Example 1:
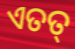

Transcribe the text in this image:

ଏତତ୍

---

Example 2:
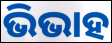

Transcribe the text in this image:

ଭିଭାହ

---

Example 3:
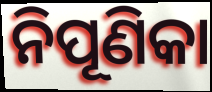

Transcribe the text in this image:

ନିପୂଣିକା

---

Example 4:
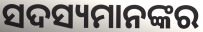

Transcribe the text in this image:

ସଦସ୍ୟମାନଙ୍କର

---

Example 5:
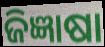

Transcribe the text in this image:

ଜିଜ୍ଞାଷା